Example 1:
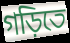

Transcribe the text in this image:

গড়িতে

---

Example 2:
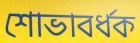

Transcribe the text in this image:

শোভাবর্ধক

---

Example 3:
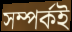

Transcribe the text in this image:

সম্পর্কই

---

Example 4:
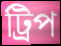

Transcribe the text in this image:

ট্রিপ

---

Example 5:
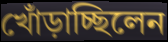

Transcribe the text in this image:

খোঁড়াচ্ছিলেন